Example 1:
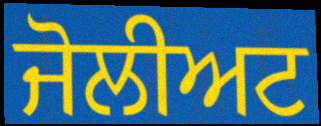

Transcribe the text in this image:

ਜੋਲੀਅਟ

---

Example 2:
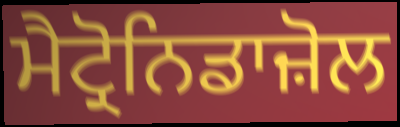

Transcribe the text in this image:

ਮੈਟ੍ਰੋਨਿਡਾਜ਼ੋਲ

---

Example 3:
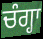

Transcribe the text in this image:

ਚੰਗ੍ਹਾ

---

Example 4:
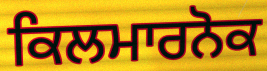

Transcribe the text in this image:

ਕਿਲਮਾਰਨੋਕ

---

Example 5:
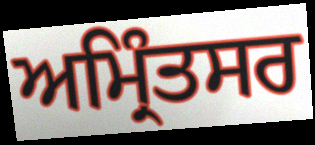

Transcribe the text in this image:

ਅਮ੍ਰਿੰਤਸਰ